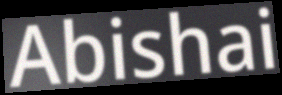
Abishai